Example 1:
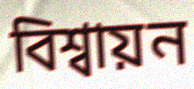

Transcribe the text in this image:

বিশ্বায়ন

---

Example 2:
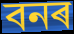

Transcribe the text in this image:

বনৰ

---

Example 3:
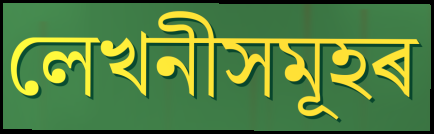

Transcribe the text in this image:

লেখনীসমূহৰ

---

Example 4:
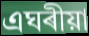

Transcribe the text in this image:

এঘৰীয়া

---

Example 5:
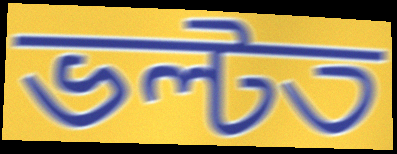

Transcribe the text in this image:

ভল্টত